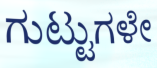
ಗುಟ್ಟುಗಳೇ